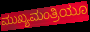
ಮುಖ್ಯಮಂತ್ರಿಯೂ